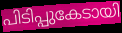
പിടിപ്പുകേടായി